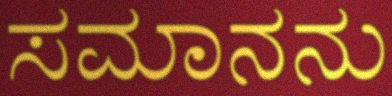
ಸಮಾನನು